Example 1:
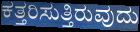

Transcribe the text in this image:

ಕತ್ತರಿಸುತ್ತಿರುವುದು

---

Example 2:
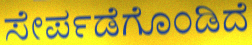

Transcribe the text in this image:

ಸೇರ್ಪಡೆಗೊಂಡಿದೆ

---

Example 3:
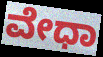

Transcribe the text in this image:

ವೇಧಾ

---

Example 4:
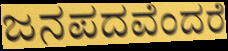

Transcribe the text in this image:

ಜನಪದವೆಂದರೆ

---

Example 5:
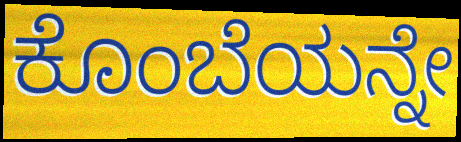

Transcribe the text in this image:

ಕೊಂಬೆಯನ್ನೇ